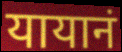
यायानं